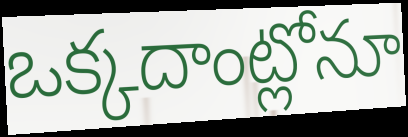
ఒక్కదాంట్లోనూ